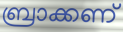
ബ്രാക്കണ്